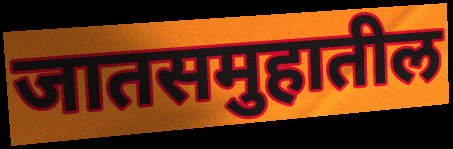
जातसमुहातील